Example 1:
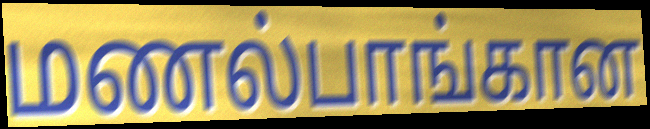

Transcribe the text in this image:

மணல்பாங்கான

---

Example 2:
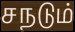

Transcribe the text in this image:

சநடும்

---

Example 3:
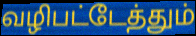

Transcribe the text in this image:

வழிபட்டேத்தும்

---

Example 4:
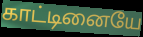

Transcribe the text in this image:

காட்டினையே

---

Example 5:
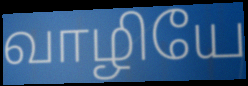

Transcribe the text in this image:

வாழியே